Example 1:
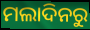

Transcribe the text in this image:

ମଲାଦିନରୁ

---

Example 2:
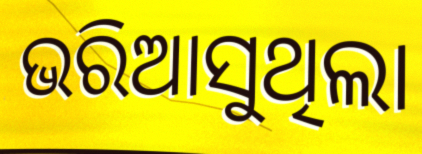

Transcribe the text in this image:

ଭରିଆସୁଥିଲା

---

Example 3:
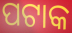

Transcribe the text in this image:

ପଟାକ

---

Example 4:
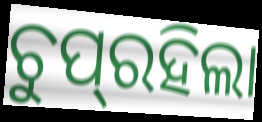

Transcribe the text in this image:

ଚୁପ୍‌ରହିଲା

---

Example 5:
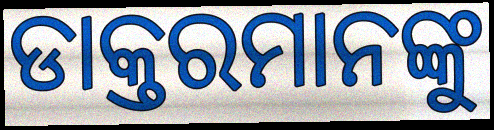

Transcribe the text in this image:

ଡାକ୍ତରମାନଙ୍କୁ